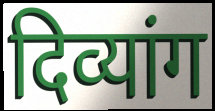
दिव्यांग